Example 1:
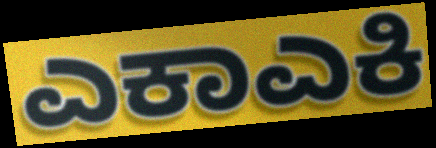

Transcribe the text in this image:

ಎಕಾಎಕಿ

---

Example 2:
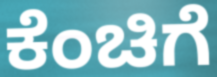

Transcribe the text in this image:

ಕೆಂಚಿಗೆ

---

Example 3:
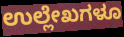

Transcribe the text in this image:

ಉಲ್ಲೇಖಗಳೂ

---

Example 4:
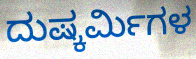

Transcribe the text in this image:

ದುಷ್ಕರ್ಮಿಗಳ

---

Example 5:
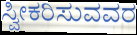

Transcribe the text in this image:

ಸ್ವೀಕರಿಸುವವರ